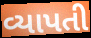
વ્યાપતી